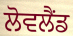
ਲੋਵਲੈਂਡ